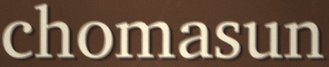
chomasun